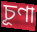
চূণা